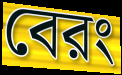
বেরং